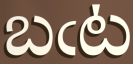
బఁట